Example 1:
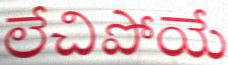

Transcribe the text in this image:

లేచిపోయే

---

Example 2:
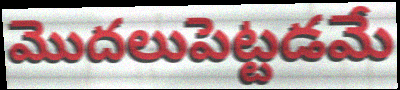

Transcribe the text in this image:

మొదలుపెట్టడమే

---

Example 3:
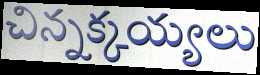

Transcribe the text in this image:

చిన్నక్కయ్యలు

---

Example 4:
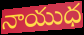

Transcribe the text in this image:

నాయుధ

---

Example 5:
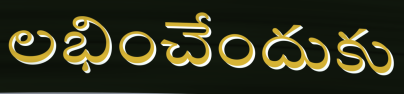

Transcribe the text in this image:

లభించేందుకు